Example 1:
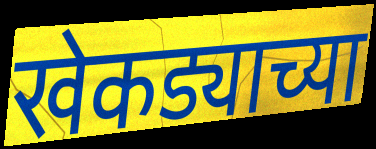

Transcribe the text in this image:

खेकड्याच्या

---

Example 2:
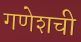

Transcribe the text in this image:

गणेशची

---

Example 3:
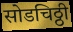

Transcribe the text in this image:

सोडचिठ्ठी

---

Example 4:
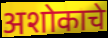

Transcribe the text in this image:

अशोकाचे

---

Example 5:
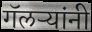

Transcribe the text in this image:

गॅलऱ्यांनी